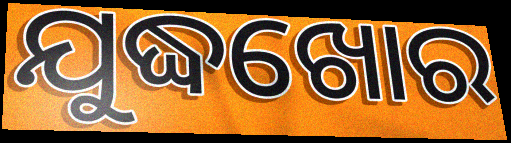
ଯୁଦ୍ଧଖୋର